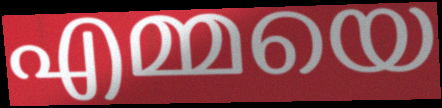
എമ്മയെ